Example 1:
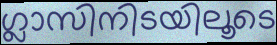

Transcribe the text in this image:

ഗ്ലാസിനിടയിലൂടെ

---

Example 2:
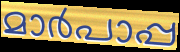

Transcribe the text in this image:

മാർപാപ്പ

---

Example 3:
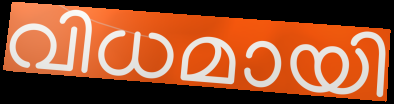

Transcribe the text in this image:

വിധമായി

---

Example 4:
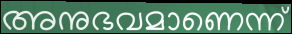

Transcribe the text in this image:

അനുഭവമാണെന്ന്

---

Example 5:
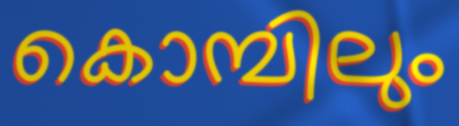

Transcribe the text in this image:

കൊമ്പിലും